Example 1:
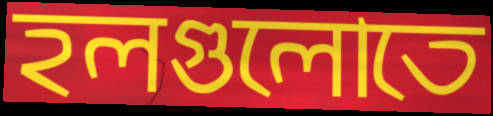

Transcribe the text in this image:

হলগুলোতে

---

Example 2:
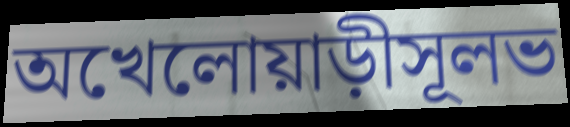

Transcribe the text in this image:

অখেলোয়াড়ীসূলভ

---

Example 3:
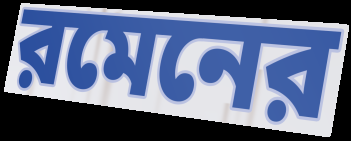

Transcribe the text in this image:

রমেনের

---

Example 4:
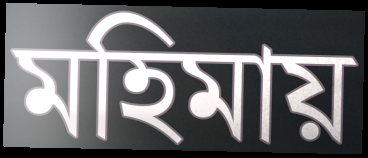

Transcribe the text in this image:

মহিমায়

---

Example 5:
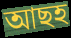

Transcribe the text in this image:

আছহ